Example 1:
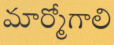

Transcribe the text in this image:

మార్మోగాలి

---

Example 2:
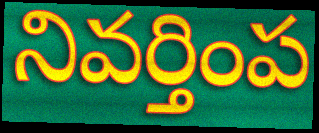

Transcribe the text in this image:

నివర్తింప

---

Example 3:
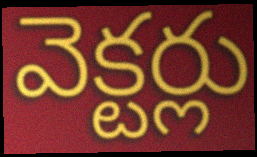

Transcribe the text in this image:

వెక్టర్లు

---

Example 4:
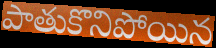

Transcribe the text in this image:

పాతుకొనిపోయిన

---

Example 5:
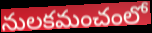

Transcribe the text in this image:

నులకమంచంలో